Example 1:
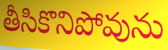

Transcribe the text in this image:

తీసికొనిపోవును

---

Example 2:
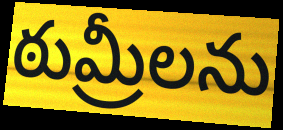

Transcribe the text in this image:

ఠుమ్రీలను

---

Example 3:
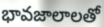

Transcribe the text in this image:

భావజాలాలతో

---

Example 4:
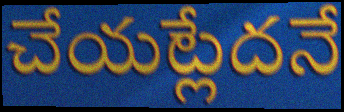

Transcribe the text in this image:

చేయట్లేదనే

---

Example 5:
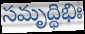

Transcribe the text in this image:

సమృద్ధిభిః